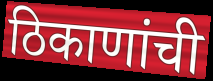
ठिकाणांची